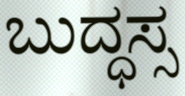
ಬುದ್ಧಸ್ಸ